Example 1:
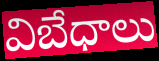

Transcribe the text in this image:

విబేధాలు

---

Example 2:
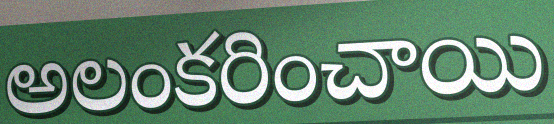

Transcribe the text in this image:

అలంకరించాయి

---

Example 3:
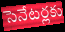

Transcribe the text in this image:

సెనేటర్లకు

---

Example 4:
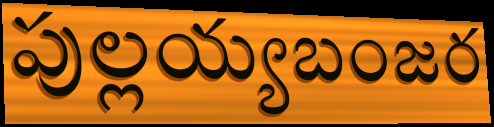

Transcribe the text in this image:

పుల్లయ్యబంజర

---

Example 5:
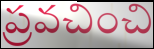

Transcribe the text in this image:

ప్రవచించి